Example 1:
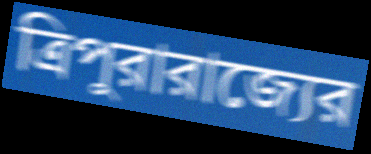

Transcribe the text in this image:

ত্রিপুরারাজ্যের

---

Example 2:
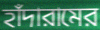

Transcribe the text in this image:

হাঁদারামের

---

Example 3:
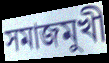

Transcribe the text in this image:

সমাজমুখী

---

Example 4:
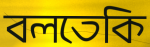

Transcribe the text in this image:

বলতেকি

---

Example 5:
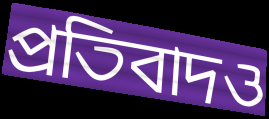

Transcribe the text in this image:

প্রতিবাদও